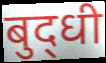
बुद्धी